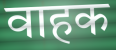
वाहक